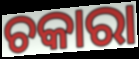
ଚକାରା